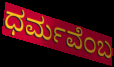
ಧರ್ಮವೆಂಬ